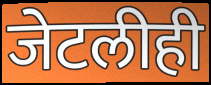
जेटलीही